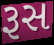
રૂસ